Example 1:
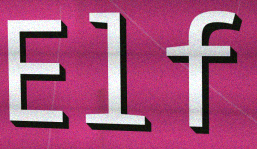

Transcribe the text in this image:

Elf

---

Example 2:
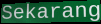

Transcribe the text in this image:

Sekarang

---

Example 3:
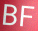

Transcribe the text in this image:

BF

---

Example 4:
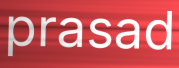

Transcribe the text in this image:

prasad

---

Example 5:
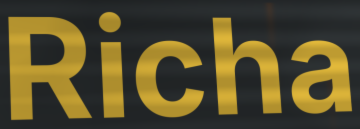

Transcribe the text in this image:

Richa